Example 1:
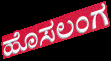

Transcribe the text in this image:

ಹೊಸಲಂಗ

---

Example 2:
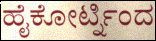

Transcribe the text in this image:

ಹೈಕೋರ್ಟ್ನಿಂದ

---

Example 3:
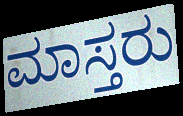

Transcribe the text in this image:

ಮಾಸ್ತರು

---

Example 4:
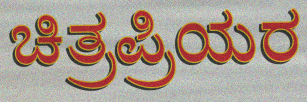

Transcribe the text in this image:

ಚಿತ್ರಪ್ರಿಯರ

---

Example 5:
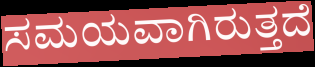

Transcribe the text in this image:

ಸಮಯವಾಗಿರುತ್ತದೆ